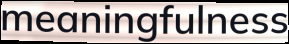
meaningfulness